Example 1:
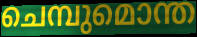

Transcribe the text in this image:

ചെമ്പുമൊന്ത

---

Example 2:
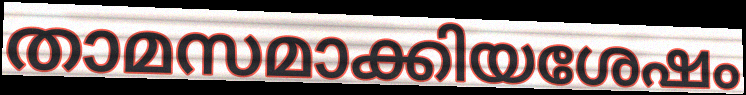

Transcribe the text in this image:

താമസമാക്കിയശേഷം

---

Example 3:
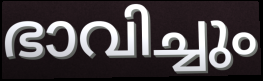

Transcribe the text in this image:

ഭാവിച്ചും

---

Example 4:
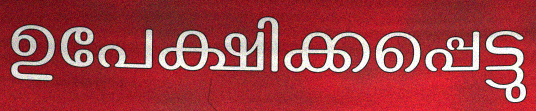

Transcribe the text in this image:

ഉപേക്ഷിക്കപ്പെട്ടു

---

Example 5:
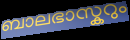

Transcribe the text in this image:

ബാലഭാസ്കറും